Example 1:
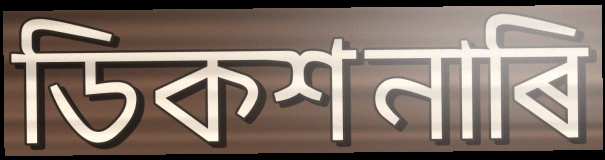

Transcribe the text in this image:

ডিকশনাৰি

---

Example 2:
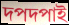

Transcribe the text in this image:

দপদপাই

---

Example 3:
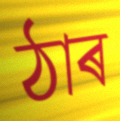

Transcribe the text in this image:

ঠাৰ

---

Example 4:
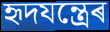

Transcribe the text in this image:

হৃদযন্ত্ৰেৰ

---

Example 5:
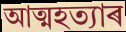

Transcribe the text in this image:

আত্মহত্যাৰ